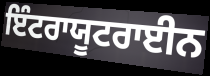
ਇੰਟਰਾਯੂਟਰਾਈਨ